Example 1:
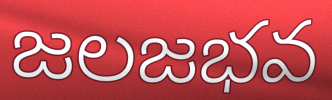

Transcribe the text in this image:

జలజభవ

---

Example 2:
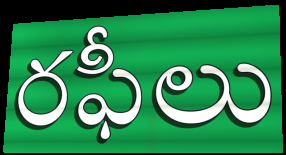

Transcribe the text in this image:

రఫీలు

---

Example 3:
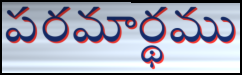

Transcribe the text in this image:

పరమార్థము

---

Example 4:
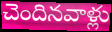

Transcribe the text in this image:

చెందినవాళ్లు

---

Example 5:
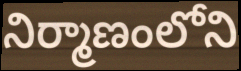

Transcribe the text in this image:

నిర్మాణంలోని